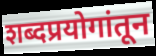
शब्दप्रयोगांतून